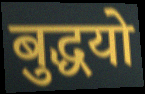
बुद्धयो